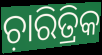
ଚ଼ାରିତ୍ରିକ